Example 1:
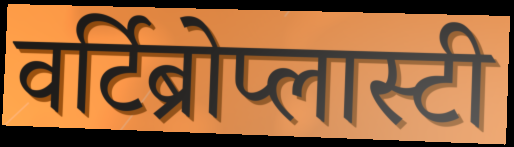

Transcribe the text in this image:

वर्टिब्रोप्लास्टी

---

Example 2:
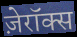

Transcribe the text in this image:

ज़ेरॉक्स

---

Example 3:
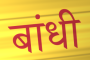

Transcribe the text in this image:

बांधी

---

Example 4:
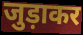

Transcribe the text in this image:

जुड़ाकर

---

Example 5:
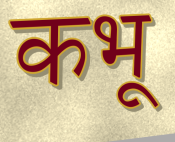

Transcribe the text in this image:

कभू